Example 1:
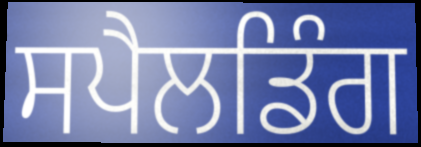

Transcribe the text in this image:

ਸਪੈਲਡਿੰਗ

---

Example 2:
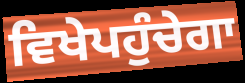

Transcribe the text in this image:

ਵਿਖੇਪਹੁੰਚੇਗਾ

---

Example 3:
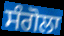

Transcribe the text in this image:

ਸੰਗੋਲਾ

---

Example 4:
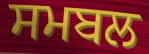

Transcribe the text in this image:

ਸਮਬਲ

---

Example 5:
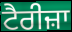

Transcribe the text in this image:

ਟੈਰੀਜ਼ਾ